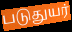
படுதுயர்